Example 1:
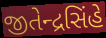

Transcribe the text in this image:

જીતેન્દ્રસિંહે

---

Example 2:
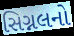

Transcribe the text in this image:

સિગ્નલનો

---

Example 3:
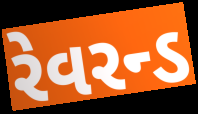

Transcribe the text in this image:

રેવરન્ડ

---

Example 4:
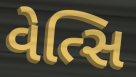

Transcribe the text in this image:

વેત્સિ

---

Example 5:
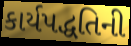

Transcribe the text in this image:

કાર્યપદ્ધતિની